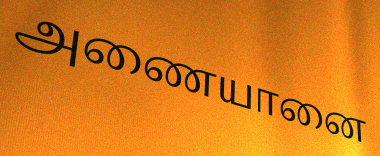
அணையானை